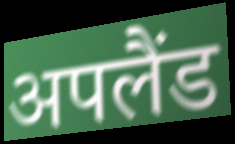
अपलैंड